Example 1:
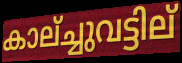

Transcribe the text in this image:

കാല്ച്ചുവട്ടില്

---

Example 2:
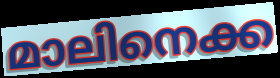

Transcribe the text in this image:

മാലിനെക്ക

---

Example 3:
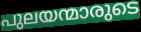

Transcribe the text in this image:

പുലയന്മാരുടെ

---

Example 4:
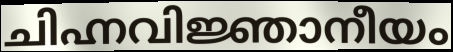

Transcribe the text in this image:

ചിഹ്നവിജ്ഞാനീയം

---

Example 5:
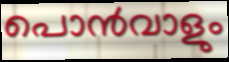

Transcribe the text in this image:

പൊൻവാളും